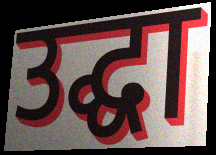
उद्घा